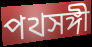
পথসঙ্গী